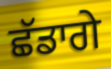
ਛੱਡਾਗੇ